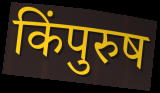
किंपुरुष